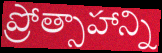
ప్రోత్సాహాన్ని